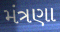
મંત્રણા